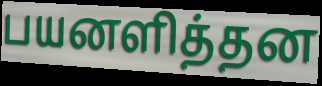
பயனளித்தன